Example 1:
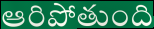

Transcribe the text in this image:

ఆరిపోతుంది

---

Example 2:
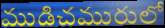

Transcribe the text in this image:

ముడిచమురులో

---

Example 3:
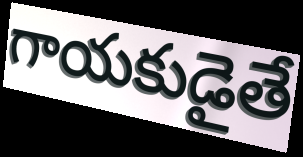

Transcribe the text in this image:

గాయకుడైతే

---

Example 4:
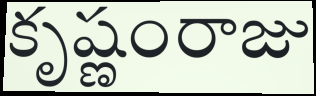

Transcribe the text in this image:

కృష్ణంరాజు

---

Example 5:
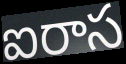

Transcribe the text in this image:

ఐరాస